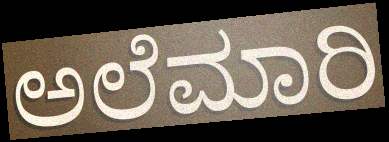
ಅಲೆಮಾರಿ